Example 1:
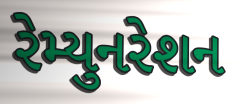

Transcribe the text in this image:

રેમ્યુનરેશન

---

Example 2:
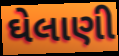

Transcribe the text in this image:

ઘેલાણી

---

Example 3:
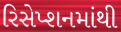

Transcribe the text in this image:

રિસેપ્શનમાંથી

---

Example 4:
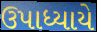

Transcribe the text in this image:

ઉપાધ્યાયે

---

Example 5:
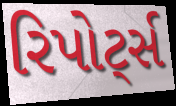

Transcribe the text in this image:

રિપોર્ટ્સ